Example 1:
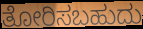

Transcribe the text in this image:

ತೋರಿಸಬಹುದು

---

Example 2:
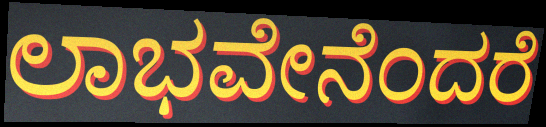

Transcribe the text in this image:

ಲಾಭವೇನೆಂದರೆ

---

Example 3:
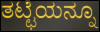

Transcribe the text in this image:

ತಟ್ಟೆಯನ್ನೂ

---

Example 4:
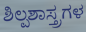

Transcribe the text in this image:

ಶಿಲ್ಪಶಾಸ್ತ್ರಗಳ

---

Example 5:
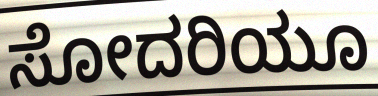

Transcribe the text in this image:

ಸೋದರಿಯೂ